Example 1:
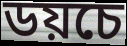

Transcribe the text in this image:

ডয়চে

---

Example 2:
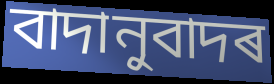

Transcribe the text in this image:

বাদানুবাদৰ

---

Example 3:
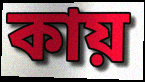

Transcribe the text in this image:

কায়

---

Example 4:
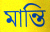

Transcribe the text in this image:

মান্তি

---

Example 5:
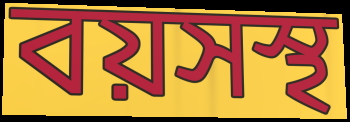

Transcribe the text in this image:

বয়সস্থ